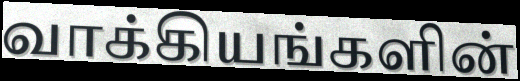
வாக்கியங்களின்